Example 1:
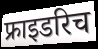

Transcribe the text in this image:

फ्राइडरिच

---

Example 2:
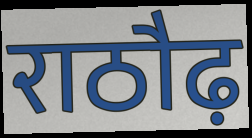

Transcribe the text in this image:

राठौढ़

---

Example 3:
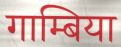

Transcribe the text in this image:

गाम्बिया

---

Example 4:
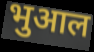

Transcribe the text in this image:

भुआल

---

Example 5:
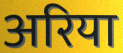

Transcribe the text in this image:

अरिया